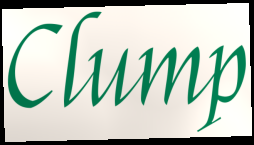
Clump